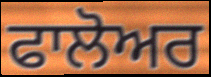
ਫਾਲੋਅਰ